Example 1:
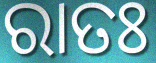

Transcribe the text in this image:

ରାତଃ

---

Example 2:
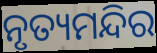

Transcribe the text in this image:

ନୃତ୍ୟମନ୍ଦିର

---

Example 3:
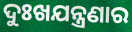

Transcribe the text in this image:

ଦୁଃଖଯନ୍ତ୍ରଣାର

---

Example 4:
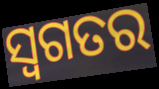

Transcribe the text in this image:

ସ୍ୱଗତର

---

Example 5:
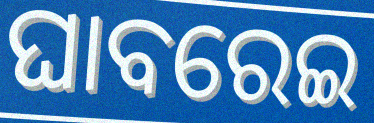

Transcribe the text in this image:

ଘାବରେଇ